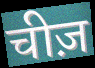
चीज़